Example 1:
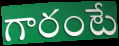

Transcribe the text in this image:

గారంటే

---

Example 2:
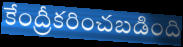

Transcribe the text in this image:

కేంద్రీకరించబడింది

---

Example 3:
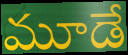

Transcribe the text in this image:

మూడే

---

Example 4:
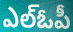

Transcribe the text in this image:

ఎల్ఓపీ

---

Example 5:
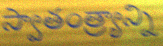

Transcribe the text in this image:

స్వాతంత్ర్యాన్ని